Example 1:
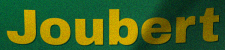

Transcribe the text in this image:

Joubert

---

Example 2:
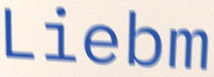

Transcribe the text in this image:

Liebm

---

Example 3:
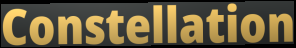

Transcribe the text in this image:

Constellation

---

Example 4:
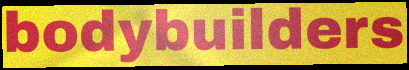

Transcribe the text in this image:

bodybuilders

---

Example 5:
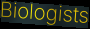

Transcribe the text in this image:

Biologists